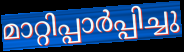
മാറ്റിപ്പാർപ്പിച്ചു